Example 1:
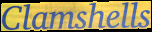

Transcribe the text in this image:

Clamshells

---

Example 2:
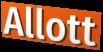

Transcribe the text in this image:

Allott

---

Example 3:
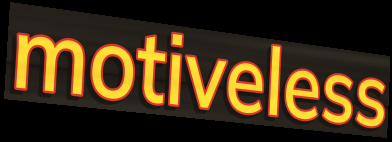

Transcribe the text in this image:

motiveless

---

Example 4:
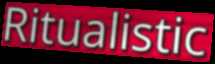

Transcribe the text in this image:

Ritualistic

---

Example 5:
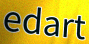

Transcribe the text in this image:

edart